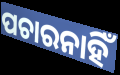
ପଚାରନାହିଁ